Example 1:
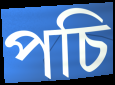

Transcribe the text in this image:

পচি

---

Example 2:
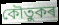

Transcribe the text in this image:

কৌতুকৰ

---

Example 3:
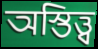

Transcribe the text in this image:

অস্তিত্ত্ব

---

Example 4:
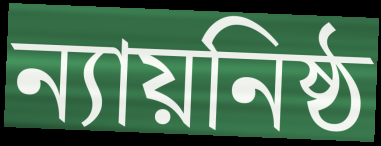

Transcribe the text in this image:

ন্যায়নিষ্ঠ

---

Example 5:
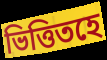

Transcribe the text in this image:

ভিত্তিতহে